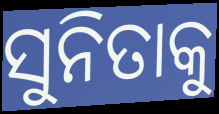
ସୁନିତାକୁ